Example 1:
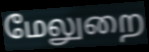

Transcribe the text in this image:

மேலுறை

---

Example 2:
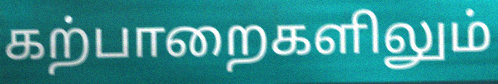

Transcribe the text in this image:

கற்பாறைகளிலும்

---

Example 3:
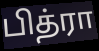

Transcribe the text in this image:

பித்ரா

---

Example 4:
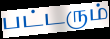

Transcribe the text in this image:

பட்டரும்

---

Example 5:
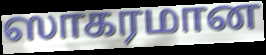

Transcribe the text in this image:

ஸாகரமான